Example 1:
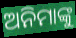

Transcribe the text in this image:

ଅନିମାଙ୍କୁ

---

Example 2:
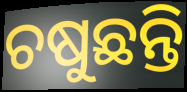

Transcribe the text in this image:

ଚଷୁଛନ୍ତି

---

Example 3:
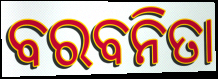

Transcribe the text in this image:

ବରବନିତା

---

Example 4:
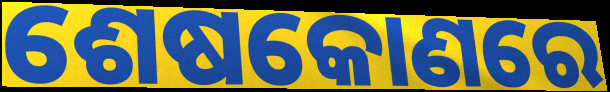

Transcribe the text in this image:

ଶେଷକୋଣରେ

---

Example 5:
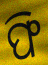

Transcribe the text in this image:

ଫି